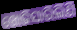
ଖୋଜିସାରିଲିଣି